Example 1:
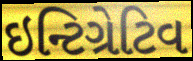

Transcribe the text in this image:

ઇન્ટિગ્રેટિવ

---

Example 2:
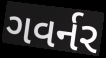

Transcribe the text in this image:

ગવર્નર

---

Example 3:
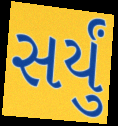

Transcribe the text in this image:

સર્યું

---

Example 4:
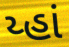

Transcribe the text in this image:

ય્હાં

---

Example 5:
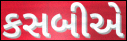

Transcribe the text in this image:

કસબીએ